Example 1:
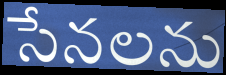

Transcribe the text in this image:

సేనలను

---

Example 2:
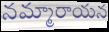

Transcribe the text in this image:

నమ్మారాయన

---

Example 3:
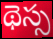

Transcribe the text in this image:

థెస్స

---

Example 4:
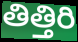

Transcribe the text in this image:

తిత్తిరి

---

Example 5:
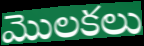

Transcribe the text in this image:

మొలకలు